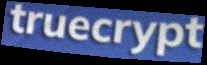
truecrypt